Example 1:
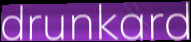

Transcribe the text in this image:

drunkard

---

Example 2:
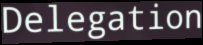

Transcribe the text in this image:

Delegation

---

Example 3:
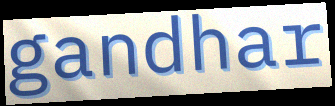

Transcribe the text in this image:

gandhar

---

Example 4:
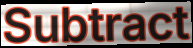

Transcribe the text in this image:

Subtract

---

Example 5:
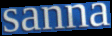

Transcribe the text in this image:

sanna